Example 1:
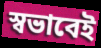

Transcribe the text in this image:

স্বভাবেই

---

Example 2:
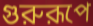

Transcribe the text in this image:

গুরুরূপে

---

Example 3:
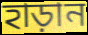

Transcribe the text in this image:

হাড়ান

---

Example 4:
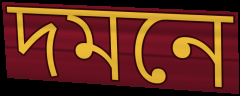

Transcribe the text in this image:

দমনে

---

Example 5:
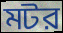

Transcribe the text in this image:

মটর